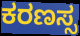
ಕರಣಸ್ಸ